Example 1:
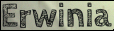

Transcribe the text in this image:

Erwinia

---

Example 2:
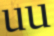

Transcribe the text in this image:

uu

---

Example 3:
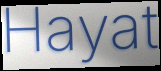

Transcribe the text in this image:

Hayat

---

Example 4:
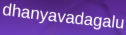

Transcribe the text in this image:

dhanyavadagalu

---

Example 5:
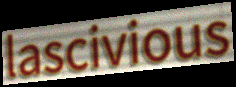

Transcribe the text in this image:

lascivious